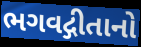
ભગવદ્ગીતાનો